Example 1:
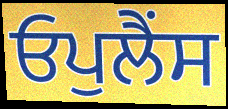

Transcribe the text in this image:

ਓਪੁਲੈਂਸ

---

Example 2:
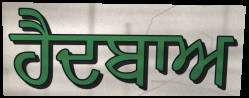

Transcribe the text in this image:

ਹੈਦਬਾਅ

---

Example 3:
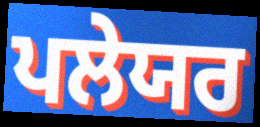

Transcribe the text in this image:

ਪਲੇਯਰ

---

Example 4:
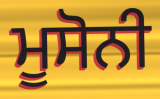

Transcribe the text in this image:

ਮੂਸੋਨੀ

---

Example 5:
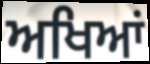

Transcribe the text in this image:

ਅਖਿਆਂ